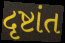
દૃષ્ટાંત